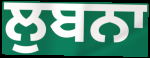
ਲੁਬਨਾ